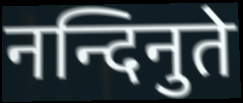
नन्दिनुते